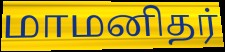
மாமனிதர்